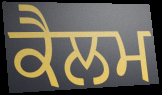
ਕੈਲਮ